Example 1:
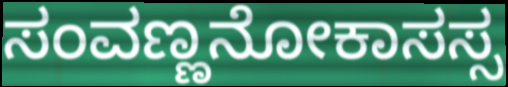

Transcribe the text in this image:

ಸಂವಣ್ಣನೋಕಾಸಸ್ಸ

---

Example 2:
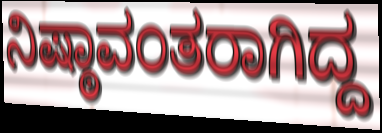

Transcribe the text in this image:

ನಿಷ್ಠಾವಂತರಾಗಿದ್ದ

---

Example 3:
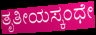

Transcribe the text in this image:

ತೃತೀಯಸ್ಕಂಧೇ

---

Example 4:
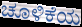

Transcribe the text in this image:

ಚೂಳಿಕೆಯ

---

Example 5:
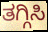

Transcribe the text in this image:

ತಗ್ಗಿಸಿ